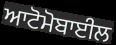
ਆਟੋਮੋਬਾਈਲ